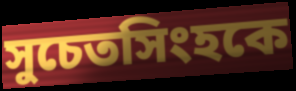
সুচেতসিংহকে